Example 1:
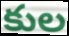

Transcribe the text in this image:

కుల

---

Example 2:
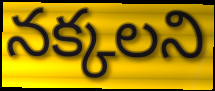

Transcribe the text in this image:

నక్కలని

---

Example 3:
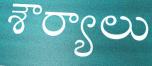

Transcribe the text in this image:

శౌర్యాలు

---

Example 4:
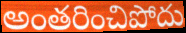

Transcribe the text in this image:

అంతరించిపోదు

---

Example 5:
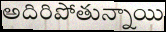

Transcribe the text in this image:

అదిరిపోతున్నాయి